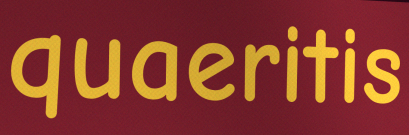
quaeritis